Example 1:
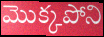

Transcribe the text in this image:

మొక్కపోని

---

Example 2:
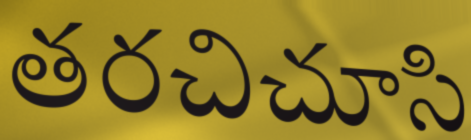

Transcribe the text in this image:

తరచిచూసి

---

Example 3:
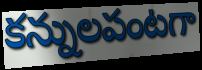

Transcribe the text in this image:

కన్నులపంటగా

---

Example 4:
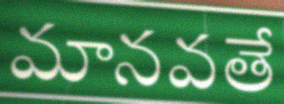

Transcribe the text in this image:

మానవతే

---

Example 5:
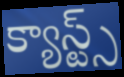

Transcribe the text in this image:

క్యాస్ట్స్